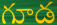
గూడ